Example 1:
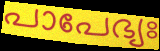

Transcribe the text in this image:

പാപേഭ്യഃ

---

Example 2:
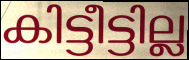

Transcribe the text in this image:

കിട്ടീട്ടില്ല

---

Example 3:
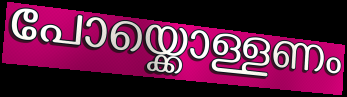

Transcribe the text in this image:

പോയ്ക്കൊള്ളണം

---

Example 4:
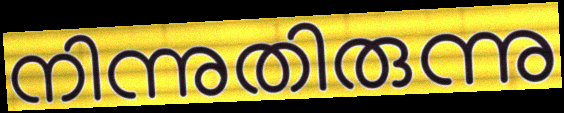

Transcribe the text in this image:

നിന്നുതിരുന്നു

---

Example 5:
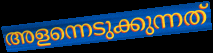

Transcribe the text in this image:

അളന്നെടുക്കുന്നത്